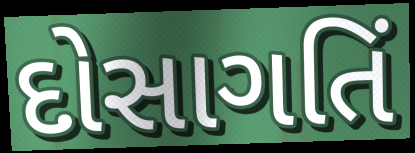
દોસાગતિં